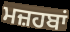
ਮਜ਼ਹਬਾਂ